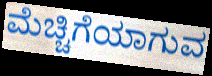
ಮೆಚ್ಚಿಗೆಯಾಗುವ